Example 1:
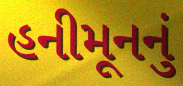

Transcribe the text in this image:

હનીમૂનનું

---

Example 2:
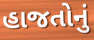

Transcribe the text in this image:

હાજતોનું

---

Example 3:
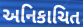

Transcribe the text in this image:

અનિકાચિત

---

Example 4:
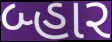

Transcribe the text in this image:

બ્હાર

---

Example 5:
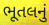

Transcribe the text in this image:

ભૂતલનું